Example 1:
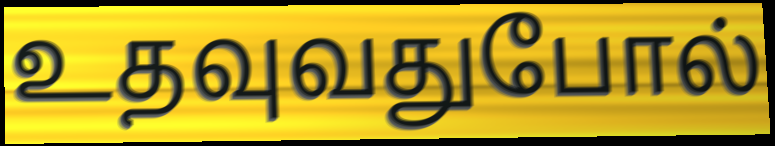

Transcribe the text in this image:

உதவுவதுபோல்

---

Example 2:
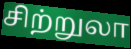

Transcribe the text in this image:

சிற்றுலா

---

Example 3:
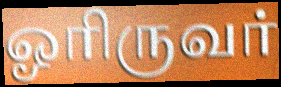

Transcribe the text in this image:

ஓரிருவர்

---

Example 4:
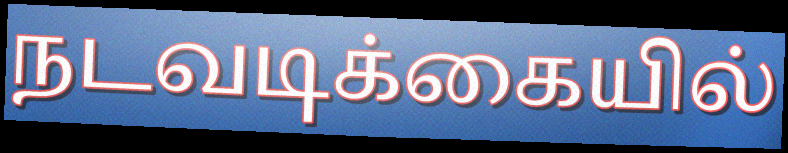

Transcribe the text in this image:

நடவடிக்கையில்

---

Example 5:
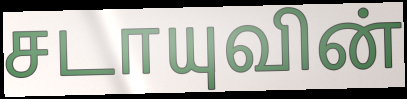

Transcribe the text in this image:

சடாயுவின்